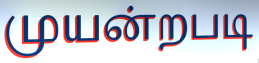
முயன்றபடி